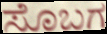
ಸೊಬಗ